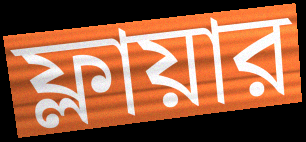
ফ্লায়ার